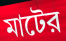
মাটের